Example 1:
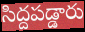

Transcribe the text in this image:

సిద్దపడ్డారు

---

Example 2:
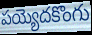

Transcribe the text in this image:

పయ్యెదకొంగు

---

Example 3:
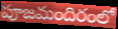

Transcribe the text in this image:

పూజమందిరంలో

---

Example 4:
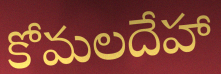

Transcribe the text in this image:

కోమలదేహా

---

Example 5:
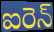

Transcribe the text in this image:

ఐరెన్